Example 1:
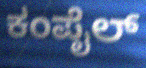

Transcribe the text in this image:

ಕಂಪೈಲ್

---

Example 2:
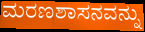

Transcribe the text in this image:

ಮರಣಶಾಸನವನ್ನು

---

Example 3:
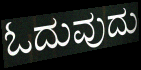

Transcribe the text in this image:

ಓದುವುದು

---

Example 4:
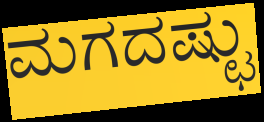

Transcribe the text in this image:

ಮಗದಷ್ಟು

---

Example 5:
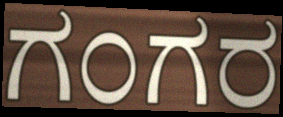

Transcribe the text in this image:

ಗಂಗರ